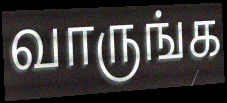
வாருங்க